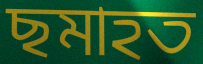
ছমাহত